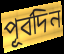
পূর্বদিন